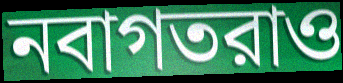
নবাগতরাও